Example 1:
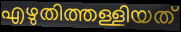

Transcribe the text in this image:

എഴുതിത്തള്ളിയത്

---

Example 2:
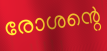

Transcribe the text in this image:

രോശന്റെ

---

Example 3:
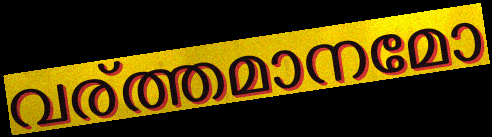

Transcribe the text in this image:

വര്ത്തമാനമോ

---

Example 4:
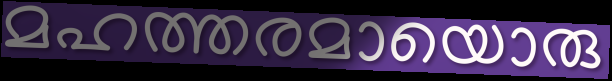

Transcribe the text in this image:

മഹത്തരമായൊരു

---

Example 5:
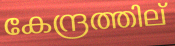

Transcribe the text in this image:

കേന്ദ്രത്തില്